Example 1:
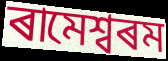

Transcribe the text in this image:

ৰামেশ্বৰম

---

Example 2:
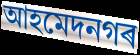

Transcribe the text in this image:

আহমেদনগৰ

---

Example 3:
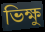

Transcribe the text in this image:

ভিক্ষু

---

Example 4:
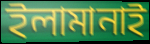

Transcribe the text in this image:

ইলামানাই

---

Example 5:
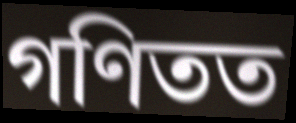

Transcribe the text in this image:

গণিতত